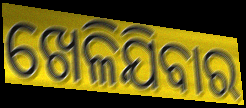
ଖେଳିଯିବାର